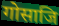
गोसाजि